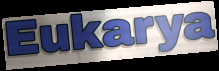
Eukarya